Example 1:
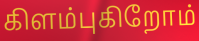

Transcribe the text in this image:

கிளம்புகிறோம்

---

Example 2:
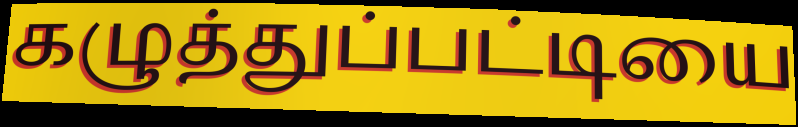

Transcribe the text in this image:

கழுத்துப்பட்டியை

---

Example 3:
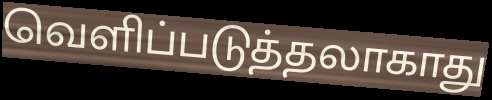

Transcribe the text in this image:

வெளிப்படுத்தலாகாது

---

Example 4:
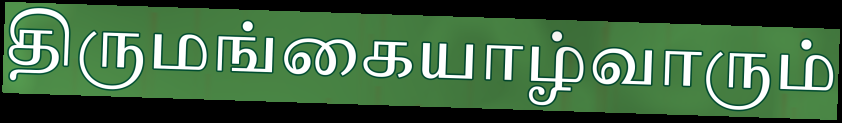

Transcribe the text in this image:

திருமங்கையாழ்வாரும்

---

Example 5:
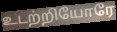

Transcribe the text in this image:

உடற்றியோரே